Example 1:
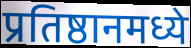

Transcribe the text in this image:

प्रतिष्ठानमध्ये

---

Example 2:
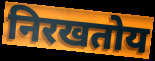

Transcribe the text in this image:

निरखतोय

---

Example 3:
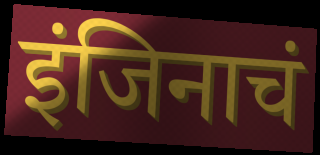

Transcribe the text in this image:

इंजिनाचं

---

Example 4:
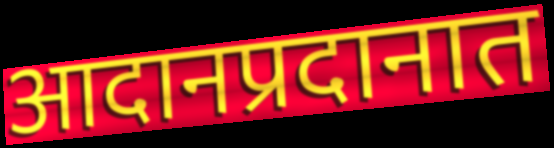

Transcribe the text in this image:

आदानप्रदानात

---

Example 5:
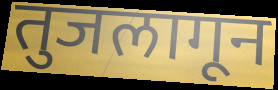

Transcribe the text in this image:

तुजलागून